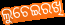
ଲୁଚେଇରଖି